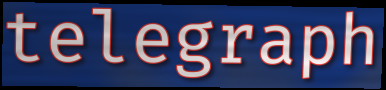
telegraph